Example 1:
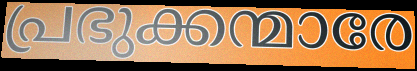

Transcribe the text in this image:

പ്രഭുക്കന്മാരേ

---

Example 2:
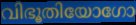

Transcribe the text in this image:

വിഭൂതിയോഗോ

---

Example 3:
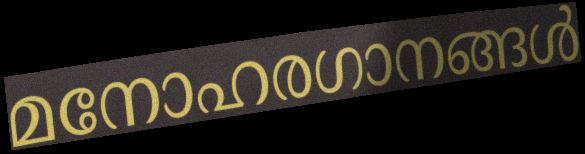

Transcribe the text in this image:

മനോഹരഗാനങ്ങൾ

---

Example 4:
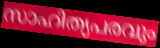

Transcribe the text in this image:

സാഹിത്യപരവും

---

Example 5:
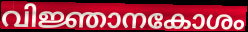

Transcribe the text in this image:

വിജ്ഞാനകോശം